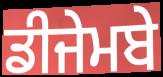
ਡੀਜੇਮਬੇ